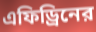
এফিড্রিনের